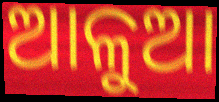
ଆଳୁଆ